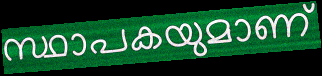
സ്ഥാപകയുമാണ്